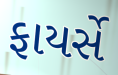
ફાયર્સે